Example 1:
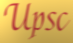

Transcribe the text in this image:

Upsc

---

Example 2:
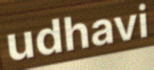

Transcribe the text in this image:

udhavi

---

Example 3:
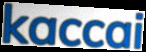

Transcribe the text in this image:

kaccai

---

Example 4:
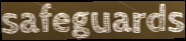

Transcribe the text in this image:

safeguards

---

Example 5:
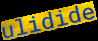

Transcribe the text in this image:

ulidide